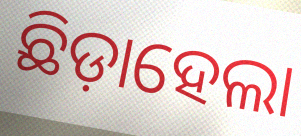
ଛିଡ଼ାହେଲା